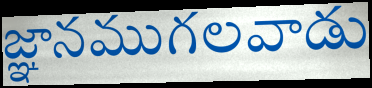
జ్ఞానముగలవాడు